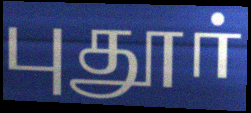
புதூர்